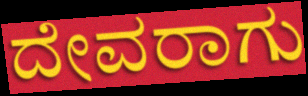
ದೇವರಾಗು